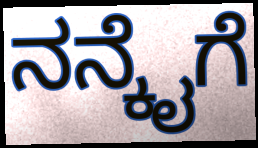
ನನ್ಕೈಗೆ